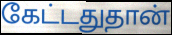
கேட்டதுதான்